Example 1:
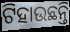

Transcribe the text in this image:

ଟିହାଉଛନ୍ତି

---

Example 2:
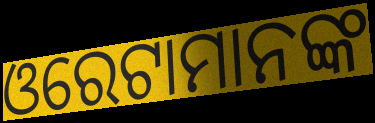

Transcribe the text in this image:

ଓରେଟାମାନଙ୍କ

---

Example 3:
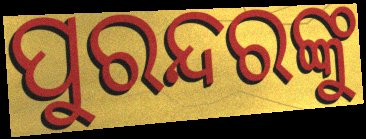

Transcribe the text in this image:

ପୁରନ୍ଦରଙ୍କୁ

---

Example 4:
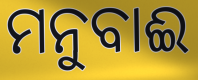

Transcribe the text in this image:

ମନୁବାଈ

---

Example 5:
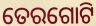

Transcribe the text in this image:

ତେରଗୋଟି